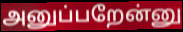
அனுப்பறேன்னு